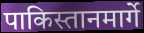
पाकिस्तानमार्गे